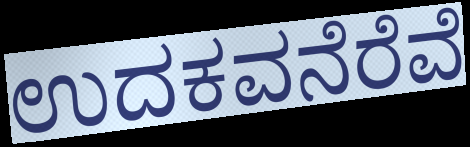
ಉದಕವನೆರೆವೆ